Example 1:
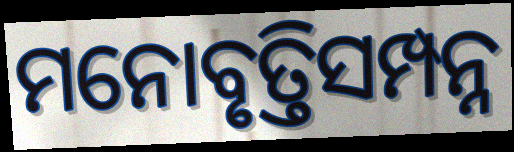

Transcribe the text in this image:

ମନୋବୃତ୍ତିସମ୍ପନ୍ନ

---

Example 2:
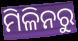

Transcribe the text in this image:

ମିଳିନରୁ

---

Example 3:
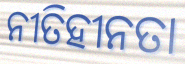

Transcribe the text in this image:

ନୀତିହୀନତା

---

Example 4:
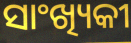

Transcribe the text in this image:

ସାଂଖ୍ୟିକୀ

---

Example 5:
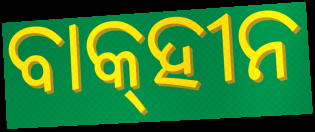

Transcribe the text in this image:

ବାକ୍‌ହୀନ